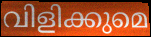
വിളിക്കുമെ